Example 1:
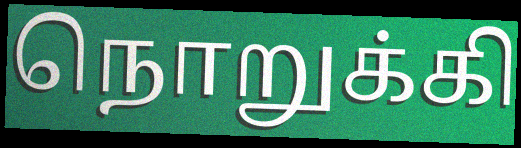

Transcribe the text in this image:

நொறுக்கி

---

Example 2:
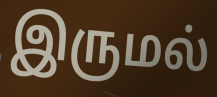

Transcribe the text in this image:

இருமல்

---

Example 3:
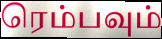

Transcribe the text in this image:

ரெம்பவும்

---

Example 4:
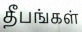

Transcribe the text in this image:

தீபங்கள்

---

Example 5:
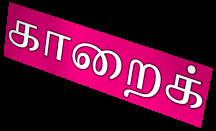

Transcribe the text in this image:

காறைக்